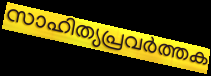
സാഹിത്യപ്രവർത്തക